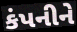
કંપનીને